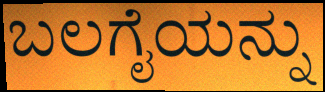
ಬಲಗೈಯನ್ನು